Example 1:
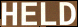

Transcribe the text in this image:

HELD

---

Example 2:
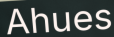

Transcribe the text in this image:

Ahues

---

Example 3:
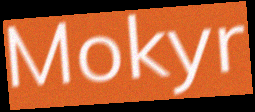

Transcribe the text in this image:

Mokyr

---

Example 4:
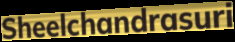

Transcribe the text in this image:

Sheelchandrasuri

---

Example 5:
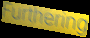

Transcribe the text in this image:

Furthering